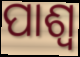
ପାଶ୍ୱ